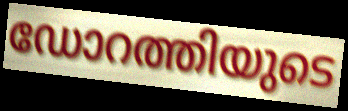
ഡോറത്തിയുടെ